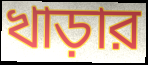
খাড়ার